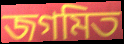
জগমিত